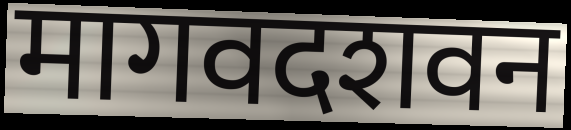
मागवदशवन